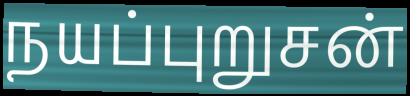
நயப்புறுசன்